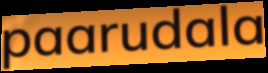
paarudala